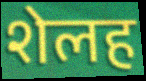
शेलह